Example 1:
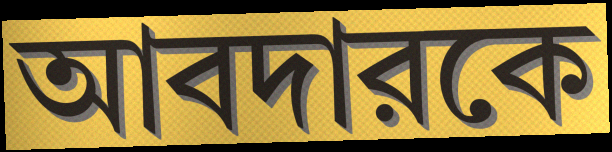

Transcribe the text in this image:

আবদারকে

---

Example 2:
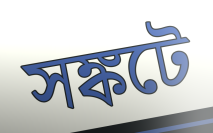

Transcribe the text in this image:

সঙ্কটে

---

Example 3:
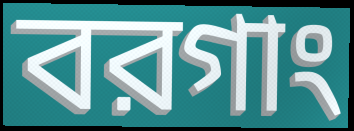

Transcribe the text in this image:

বরগাং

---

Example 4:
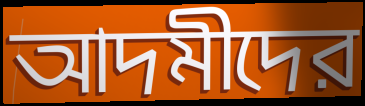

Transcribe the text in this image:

আদমীদের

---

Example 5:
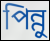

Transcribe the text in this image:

পিন্নু